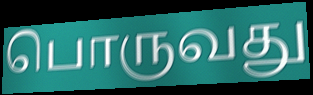
பொருவது